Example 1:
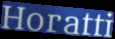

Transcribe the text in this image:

Horatti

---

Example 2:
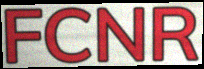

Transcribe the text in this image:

FCNR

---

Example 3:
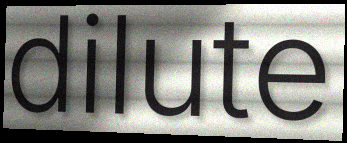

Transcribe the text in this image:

dilute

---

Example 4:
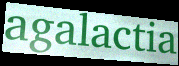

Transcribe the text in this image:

agalactia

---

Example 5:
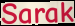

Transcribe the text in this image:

Sarak